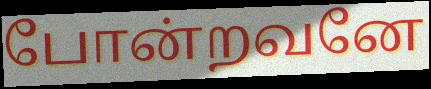
போன்றவனே